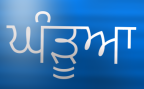
ਘੰੜੂਆ